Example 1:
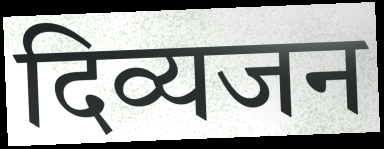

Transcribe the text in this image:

दिव्यजन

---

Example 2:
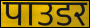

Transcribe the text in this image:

पाउडर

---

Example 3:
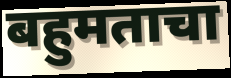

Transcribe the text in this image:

बहुमताचा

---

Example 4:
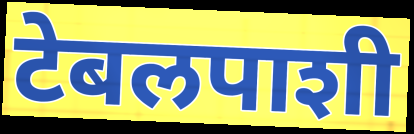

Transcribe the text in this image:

टेबलपाशी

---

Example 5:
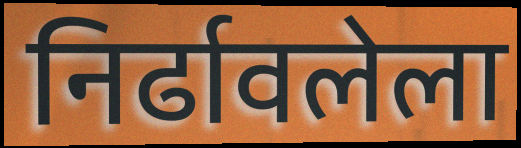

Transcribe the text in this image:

निर्ढावलेला